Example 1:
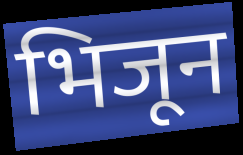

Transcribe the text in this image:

भिजून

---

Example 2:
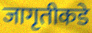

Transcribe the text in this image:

जागृतीकडे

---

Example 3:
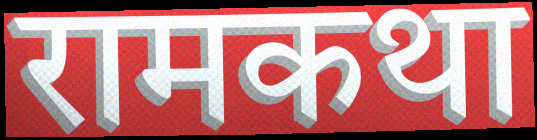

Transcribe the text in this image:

रामकथा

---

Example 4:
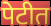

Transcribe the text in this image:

पेटीत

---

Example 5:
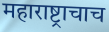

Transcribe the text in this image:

महाराष्ट्राचाच